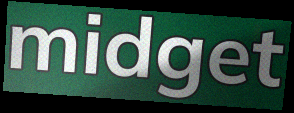
midget